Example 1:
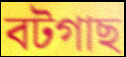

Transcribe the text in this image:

বটগাছ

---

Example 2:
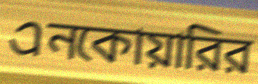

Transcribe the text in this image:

এনকোয়ারির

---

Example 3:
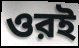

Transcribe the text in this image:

ওরই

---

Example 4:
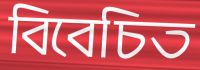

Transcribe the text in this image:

বিবেচিত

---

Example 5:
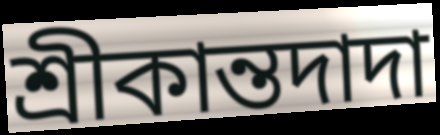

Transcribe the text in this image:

শ্রীকান্তদাদা